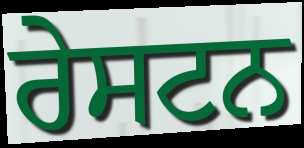
ਰੇਸਟਨ